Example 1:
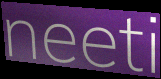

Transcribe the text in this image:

neeti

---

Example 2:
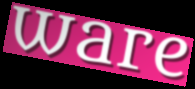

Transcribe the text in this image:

ware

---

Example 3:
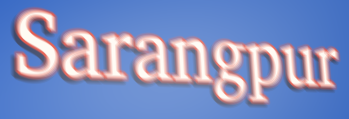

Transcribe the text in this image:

Sarangpur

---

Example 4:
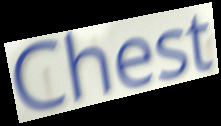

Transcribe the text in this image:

Chest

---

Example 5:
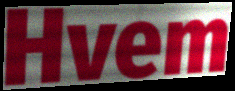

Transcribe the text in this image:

Hvem